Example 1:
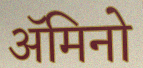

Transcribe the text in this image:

ॲमिनो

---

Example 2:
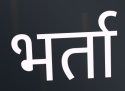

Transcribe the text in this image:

भर्ता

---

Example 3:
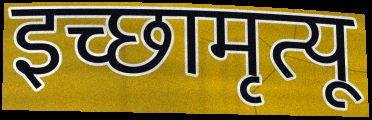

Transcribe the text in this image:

इच्छामृत्यू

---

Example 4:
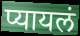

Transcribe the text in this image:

प्यायलं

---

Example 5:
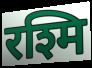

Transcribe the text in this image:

रश्मि